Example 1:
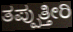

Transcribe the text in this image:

ತಪ್ಪುತ್ತೀರಿ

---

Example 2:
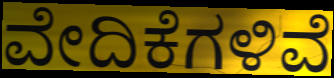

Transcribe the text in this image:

ವೇದಿಕೆಗಳಿವೆ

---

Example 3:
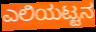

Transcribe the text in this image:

ಎಲಿಯಟ್ಟನ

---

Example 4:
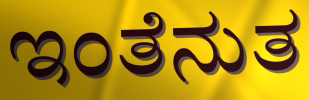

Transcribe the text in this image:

ಇಂತೆನುತ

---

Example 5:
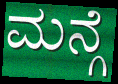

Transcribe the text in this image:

ಮನ್ಗೆ